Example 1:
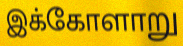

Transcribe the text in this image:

இக்கோளாறு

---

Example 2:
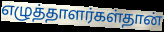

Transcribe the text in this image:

எழுத்தாளர்கள்தான்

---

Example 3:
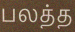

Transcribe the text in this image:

பலத்த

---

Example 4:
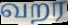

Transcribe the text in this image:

வறர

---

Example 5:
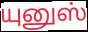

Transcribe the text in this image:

யுனுஸ்